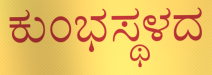
ಕುಂಭಸ್ಥಳದ